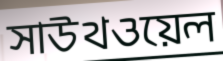
সাউথওয়েল